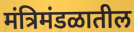
मंत्रिमंडळातील